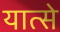
यात्से